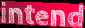
intend